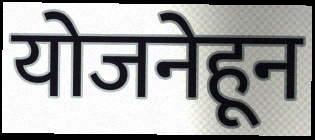
योजनेहून